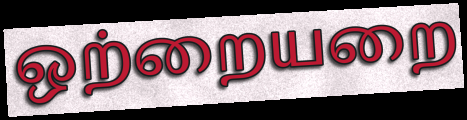
ஒற்றையறை